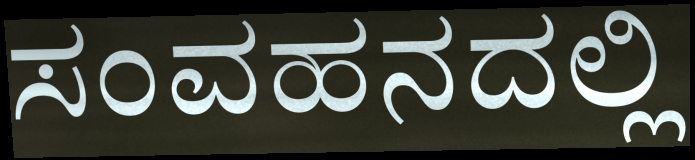
ಸಂವಹನದಲ್ಲಿ